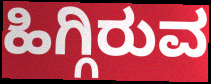
ಹಿಗ್ಗಿರುವ